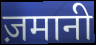
ज़मानी